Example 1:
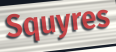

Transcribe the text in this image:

Squyres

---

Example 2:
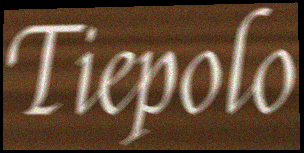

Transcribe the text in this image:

Tiepolo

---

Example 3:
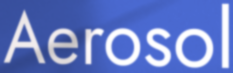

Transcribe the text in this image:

Aerosol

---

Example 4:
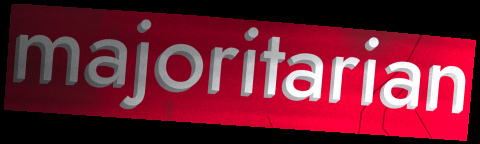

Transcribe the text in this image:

majoritarian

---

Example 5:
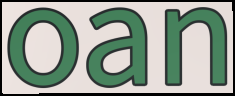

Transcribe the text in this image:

oan